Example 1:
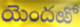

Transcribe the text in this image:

యెందఱో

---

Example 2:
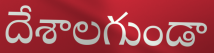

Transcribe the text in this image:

దేశాలగుండా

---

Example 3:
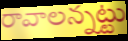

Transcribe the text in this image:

రావాలన్నట్టు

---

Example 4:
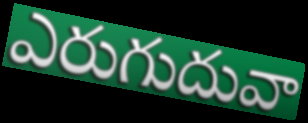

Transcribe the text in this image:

ఎరుగుదువా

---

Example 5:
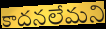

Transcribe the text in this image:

కాదనలేమని